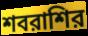
শবরাশির